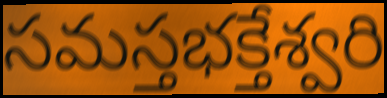
సమస్తభక్తేశ్వరి